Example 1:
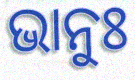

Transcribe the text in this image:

ଭାନୁଃ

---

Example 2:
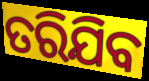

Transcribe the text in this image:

ତରିଯିବ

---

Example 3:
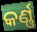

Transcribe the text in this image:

କର୍ଣ୍ଣ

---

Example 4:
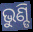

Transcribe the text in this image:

ଭୁଣ୍ଡି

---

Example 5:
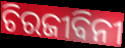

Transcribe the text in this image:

ଚିରଜୀବିନୀ